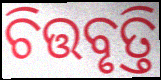
ଚିତ୍ତବୃତ୍ତି